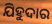
ଯିହୁଦାର